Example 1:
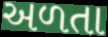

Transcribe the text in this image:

અળતા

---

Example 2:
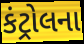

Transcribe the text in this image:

કંટ્રોલના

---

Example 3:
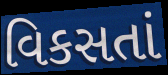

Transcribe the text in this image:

વિકસતાં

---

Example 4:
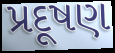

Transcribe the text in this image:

પ્રદૂષણ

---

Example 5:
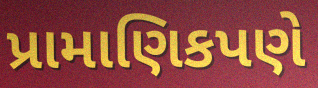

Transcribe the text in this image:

પ્રામાણિકપણે